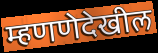
म्हणणेदेखील